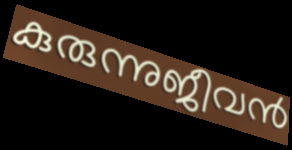
കുരുന്നുജീവൻ